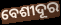
ବେଶୀଦୂର